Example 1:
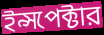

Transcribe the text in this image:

ইন্সপেক্টার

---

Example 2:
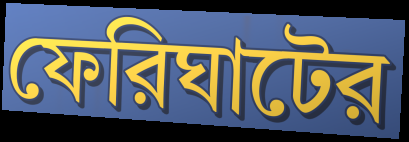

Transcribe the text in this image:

ফেরিঘাটের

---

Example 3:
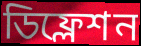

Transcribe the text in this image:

ডিফ্লেশন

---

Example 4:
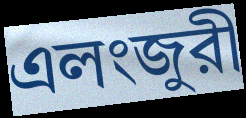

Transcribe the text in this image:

এলংজুরী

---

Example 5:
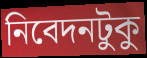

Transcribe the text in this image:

নিবেদনটুকু